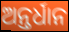
ଅନ୍ତର୍ଧାନ